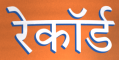
रेकॉर्ड